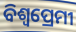
ବିଶ୍ଵପ୍ରେମୀ